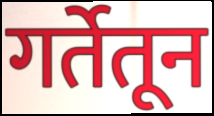
गर्तेतून